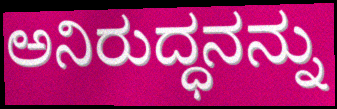
ಅನಿರುದ್ಧನನ್ನು